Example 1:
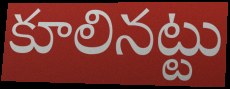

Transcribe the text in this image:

కూలినట్టు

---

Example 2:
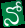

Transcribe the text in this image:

నో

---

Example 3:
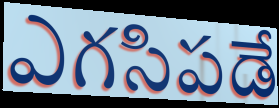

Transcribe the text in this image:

ఎగసిపడే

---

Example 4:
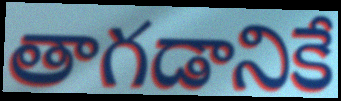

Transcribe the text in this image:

తాగడానికే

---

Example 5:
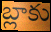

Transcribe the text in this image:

బ్లాకు